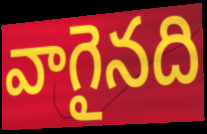
వాగైనది